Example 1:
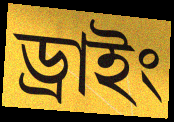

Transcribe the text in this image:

ড্রাইং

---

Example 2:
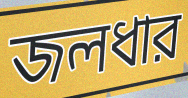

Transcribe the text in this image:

জলধার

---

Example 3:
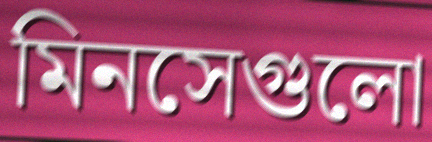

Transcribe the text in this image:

মিনসেগুলো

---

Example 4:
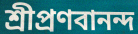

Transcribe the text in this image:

শ্রীপ্রণবানন্দ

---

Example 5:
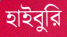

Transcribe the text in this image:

হাইবুরি